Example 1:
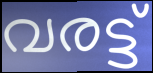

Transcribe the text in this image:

വരട്ട്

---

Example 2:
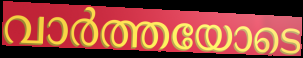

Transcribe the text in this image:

വാർത്തയോടെ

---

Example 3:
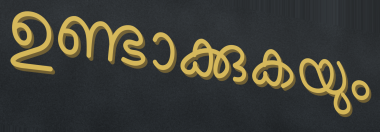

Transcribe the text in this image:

ഉണ്ടാക്കുകയും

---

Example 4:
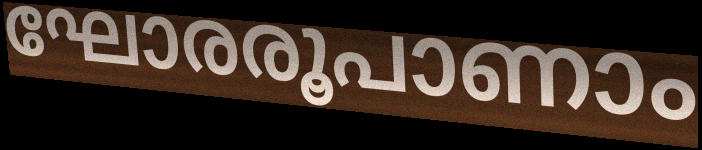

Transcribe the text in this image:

ഘോരരൂപാണാം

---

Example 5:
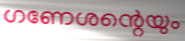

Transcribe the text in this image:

ഗണേശന്റെയും